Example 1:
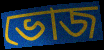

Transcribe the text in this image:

ভোজ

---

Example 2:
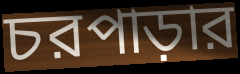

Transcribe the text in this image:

চরপাড়ার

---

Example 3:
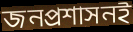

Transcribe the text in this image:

জনপ্রশাসনই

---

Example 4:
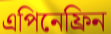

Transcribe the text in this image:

এপিনেফ্রিন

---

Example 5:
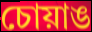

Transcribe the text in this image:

চোয়াঙ